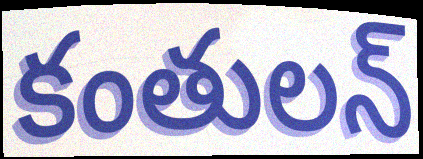
కంతులన్